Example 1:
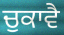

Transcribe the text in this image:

ਚੁਕਾਵੈ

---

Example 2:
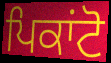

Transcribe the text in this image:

ਪਿਕਾਂਟੋ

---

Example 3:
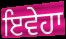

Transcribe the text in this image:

ਇਵੇਹਾ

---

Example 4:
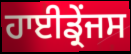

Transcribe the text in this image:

ਹਾਈਡ੍ਰੇਂਜਸ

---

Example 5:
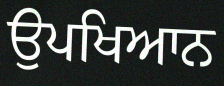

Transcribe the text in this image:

ਉਪਖਿਆਨ